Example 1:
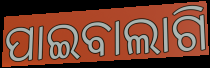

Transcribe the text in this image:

ପାଇବାଲାଗି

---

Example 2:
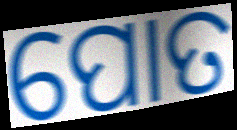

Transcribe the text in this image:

ପୋତ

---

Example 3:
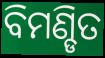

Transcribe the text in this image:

ବିମଣ୍ଡିତ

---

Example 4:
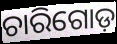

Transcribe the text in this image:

ଚାରିଗୋଡ଼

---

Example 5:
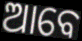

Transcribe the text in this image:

ଆବେ